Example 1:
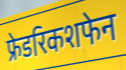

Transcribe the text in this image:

फ्रेडरिकशफेन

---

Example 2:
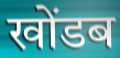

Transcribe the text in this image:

खोंडब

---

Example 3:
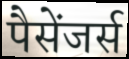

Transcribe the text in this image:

पैसेंजर्स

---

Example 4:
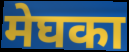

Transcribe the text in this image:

मेघका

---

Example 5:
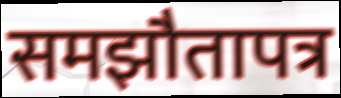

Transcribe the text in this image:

समझौतापत्र